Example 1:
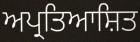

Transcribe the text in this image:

ਅਪ੍ਰਤਿਆਸ਼ਿਤ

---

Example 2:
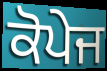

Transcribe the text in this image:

ਕੋਪੇਜ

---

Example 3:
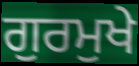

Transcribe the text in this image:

ਗੁਰਮੁਖੇ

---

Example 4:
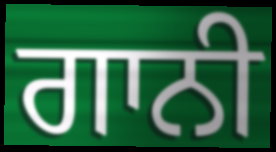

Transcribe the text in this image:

ਗਾਨੀ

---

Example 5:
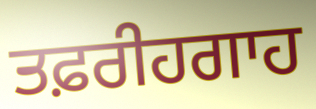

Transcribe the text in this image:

ਤਫ਼ਰੀਹਗਾਹ